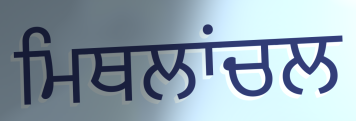
ਮਿਥਲਾਂਚਲ